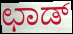
ಛಾಡ್